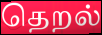
தெறல்